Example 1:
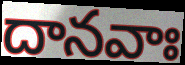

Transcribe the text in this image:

దానవాః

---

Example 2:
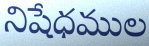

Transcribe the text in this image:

నిషేధముల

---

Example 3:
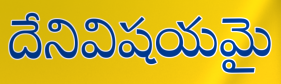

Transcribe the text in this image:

దేనివిషయమై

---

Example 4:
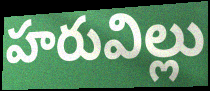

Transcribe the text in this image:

హరువిల్లు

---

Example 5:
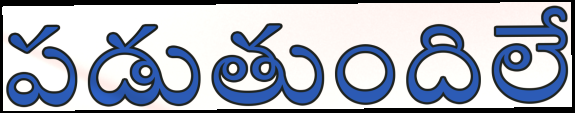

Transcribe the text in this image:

పడుతుందిలే